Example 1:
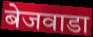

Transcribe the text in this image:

बेजवाडा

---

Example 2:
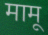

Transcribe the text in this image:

मामू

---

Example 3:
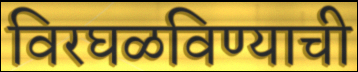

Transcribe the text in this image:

विरघळविण्याची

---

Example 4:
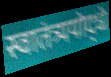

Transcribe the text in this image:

स्वातंत्र्ययोद्धे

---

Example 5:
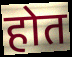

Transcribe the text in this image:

होत